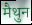
मैथुन